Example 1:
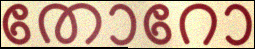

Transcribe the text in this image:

തോറോ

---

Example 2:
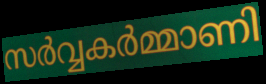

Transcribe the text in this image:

സർവ്വകർമ്മാണി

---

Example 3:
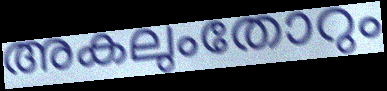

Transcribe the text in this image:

അകലുംതോറും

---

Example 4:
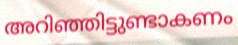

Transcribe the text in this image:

അറിഞ്ഞിട്ടുണ്ടാകണം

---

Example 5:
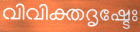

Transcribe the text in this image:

വിവിക്തദൃഷ്ടേഃ